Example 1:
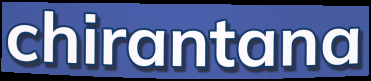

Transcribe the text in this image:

chirantana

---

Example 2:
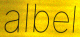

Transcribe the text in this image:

albel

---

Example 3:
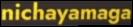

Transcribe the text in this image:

nichayamaga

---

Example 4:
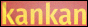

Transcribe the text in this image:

kankan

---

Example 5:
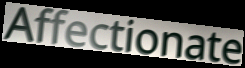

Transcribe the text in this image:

Affectionate